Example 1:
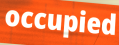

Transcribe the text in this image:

occupied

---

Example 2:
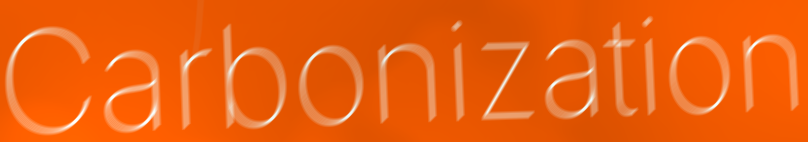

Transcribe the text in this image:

Carbonization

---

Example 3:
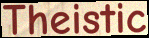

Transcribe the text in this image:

Theistic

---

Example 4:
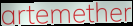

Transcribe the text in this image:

artemether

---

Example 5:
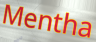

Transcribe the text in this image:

Mentha